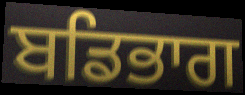
ਬਡਿਭਾਗ